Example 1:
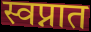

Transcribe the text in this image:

स्वप्नात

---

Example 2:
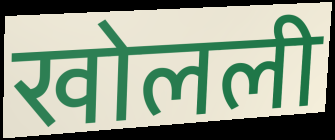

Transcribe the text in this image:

खोलली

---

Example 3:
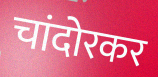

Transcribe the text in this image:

चांदोरकर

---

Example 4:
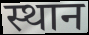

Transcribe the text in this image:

स्थान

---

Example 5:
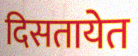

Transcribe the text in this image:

दिसतायेत